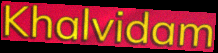
Khalvidam